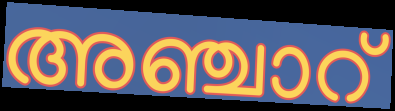
അഞ്ചാറ്